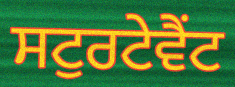
ਸਟੁਰਟੇਵੈਂਟ